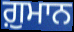
ਗ਼ੁਮਾਨ